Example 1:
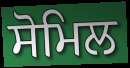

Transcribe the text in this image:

ਸੋਮਿਲ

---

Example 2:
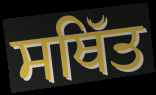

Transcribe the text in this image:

ਸਥਿੱਤ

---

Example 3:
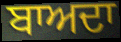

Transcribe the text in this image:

ਬਾਅਦਾ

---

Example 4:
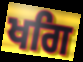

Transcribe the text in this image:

ਖਗਿ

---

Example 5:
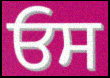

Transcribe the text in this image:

ਓਸ